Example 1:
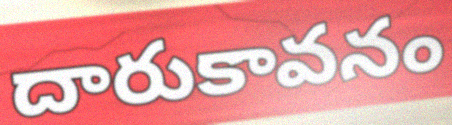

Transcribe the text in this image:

దారుకావనం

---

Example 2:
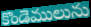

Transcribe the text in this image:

కొండెములును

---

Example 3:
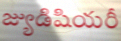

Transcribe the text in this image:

జ్యుడిషియరీ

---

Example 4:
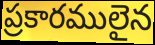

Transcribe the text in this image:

ప్రకారములైన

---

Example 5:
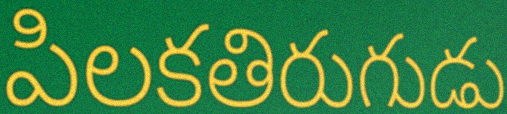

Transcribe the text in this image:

పిలకతిరుగుడు